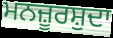
ਮਨਜ਼ੂਰਸ਼ੁਦਾ